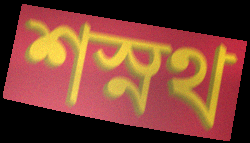
শস্নথ